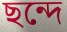
ছন্দে